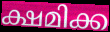
ക്ഷമിക്ക